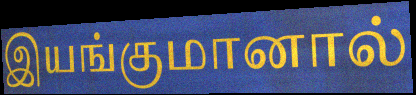
இயங்குமானால்